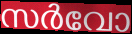
സർവോ